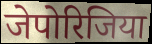
जेपोरिजिया